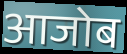
आजोब